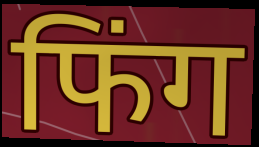
फिंग